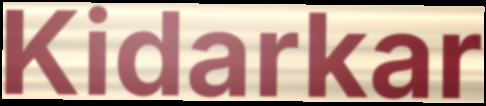
Kidarkar